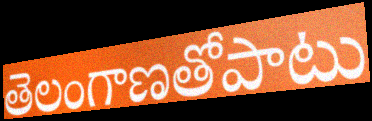
తెలంగాణతోపాటు